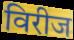
विरीज